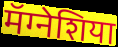
मॅग्‍नेशिया